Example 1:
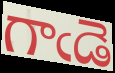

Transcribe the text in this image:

గాఁడె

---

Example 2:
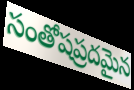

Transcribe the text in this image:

సంతోషప్రదమైన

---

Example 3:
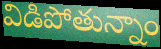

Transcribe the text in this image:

విడిపోతున్నాం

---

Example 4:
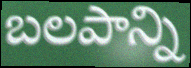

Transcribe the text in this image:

బలపాన్ని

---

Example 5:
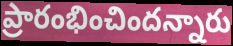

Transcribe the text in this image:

ప్రారంభించిందన్నారు